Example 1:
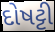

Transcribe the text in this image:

દોષટ્ટી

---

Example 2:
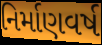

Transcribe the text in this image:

નિર્માણવર્ષ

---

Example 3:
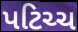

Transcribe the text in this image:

પટિચ્ચ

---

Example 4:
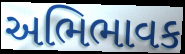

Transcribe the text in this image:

અભિભાવક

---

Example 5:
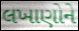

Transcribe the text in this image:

લખાણોને